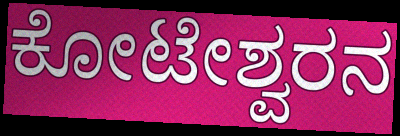
ಕೋಟೇಶ್ವರನ